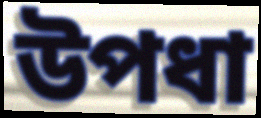
উপধা